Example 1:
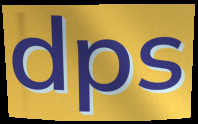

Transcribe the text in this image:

dps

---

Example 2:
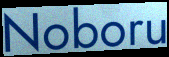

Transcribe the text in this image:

Noboru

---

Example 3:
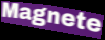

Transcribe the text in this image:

Magnete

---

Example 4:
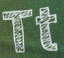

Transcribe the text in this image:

Tt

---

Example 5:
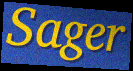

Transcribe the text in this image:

Sager